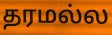
தரமல்ல